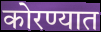
कोरण्यात